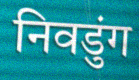
निवडुंग